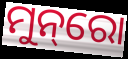
ମୁନ୍‌ରୋ